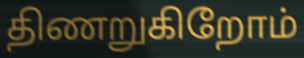
திணறுகிறோம்